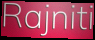
Rajniti